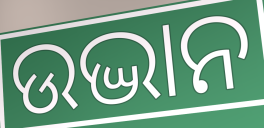
ଉଦ୍ଭାନ